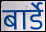
बार्डे